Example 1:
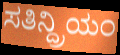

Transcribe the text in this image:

ಸತಿನ್ದ್ರಿಯಂ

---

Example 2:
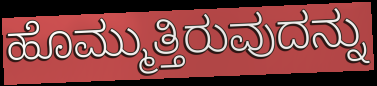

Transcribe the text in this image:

ಹೊಮ್ಮುತ್ತಿರುವುದನ್ನು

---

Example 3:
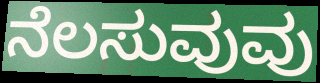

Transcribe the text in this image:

ನೆಲಸುವುವು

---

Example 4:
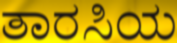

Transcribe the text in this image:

ತಾರಸಿಯ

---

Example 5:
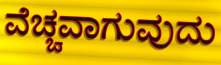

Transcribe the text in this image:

ವೆಚ್ಚವಾಗುವುದು